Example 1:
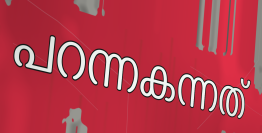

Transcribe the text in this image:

പറന്നകന്നത്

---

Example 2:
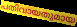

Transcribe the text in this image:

പതിവായതുമായ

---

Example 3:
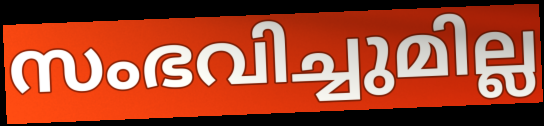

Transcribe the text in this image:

സംഭവിച്ചുമില്ല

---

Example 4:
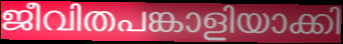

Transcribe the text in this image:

ജീവിതപങ്കാളിയാക്കി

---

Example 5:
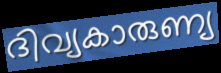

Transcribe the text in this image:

ദിവ്യകാരുണ്യ